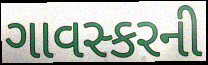
ગાવસ્કરની